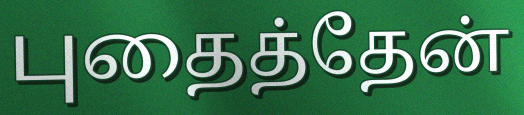
புதைத்தேன்